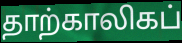
தாற்காலிகப்